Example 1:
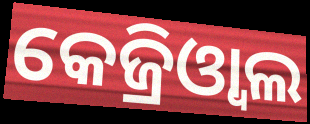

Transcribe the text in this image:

କେଜ୍ରିଓ୍ଵାଲ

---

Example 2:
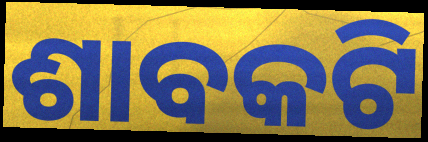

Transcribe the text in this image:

ଶାବକଟି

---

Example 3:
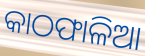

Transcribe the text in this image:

କାଠଫାଳିଆ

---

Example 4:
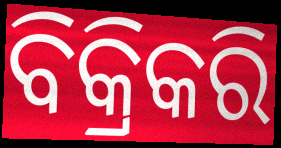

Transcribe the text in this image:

ବିକ୍ରିକରି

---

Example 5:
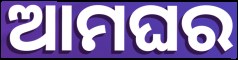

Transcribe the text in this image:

ଆମଘର